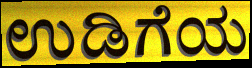
ಉಡಿಗೆಯ